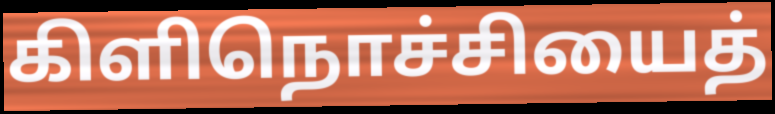
கிளிநொச்சியைத்